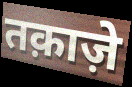
तक़ाज़े